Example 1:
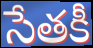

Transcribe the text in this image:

సేతకీ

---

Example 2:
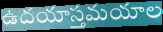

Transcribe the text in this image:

ఉదయాస్తమయాల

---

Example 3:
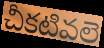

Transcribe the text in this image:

చీకటివలె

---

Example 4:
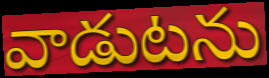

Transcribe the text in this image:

వాడుటను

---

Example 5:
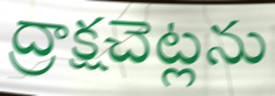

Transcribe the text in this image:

ద్రాక్షచెట్లను